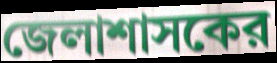
জেলাশাসকের